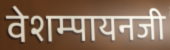
वेशम्पायनजी